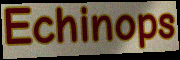
Echinops